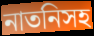
নাতনিসহ